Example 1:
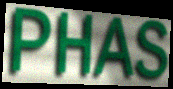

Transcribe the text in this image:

PHAS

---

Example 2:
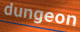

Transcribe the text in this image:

dungeon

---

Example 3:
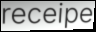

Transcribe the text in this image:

receipe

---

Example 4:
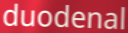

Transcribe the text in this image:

duodenal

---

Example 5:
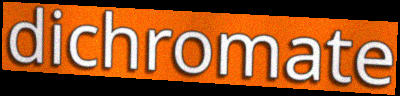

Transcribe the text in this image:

dichromate